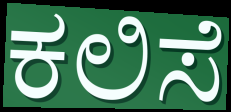
ಕಲಿಸೆ